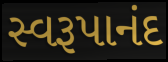
સ્વરૂપાનંદ